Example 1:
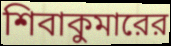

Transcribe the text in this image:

শিবাকুমারের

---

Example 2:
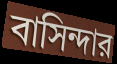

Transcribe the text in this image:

বাসিন্দার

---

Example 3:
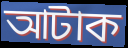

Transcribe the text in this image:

আটাক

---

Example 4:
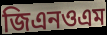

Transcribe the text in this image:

জিএনওএম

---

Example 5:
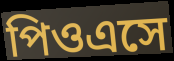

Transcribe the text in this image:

পিওএসে